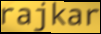
rajkar